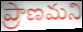
ప్రాణమని